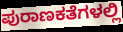
ಪುರಾಣಕತೆಗಳಲ್ಲಿ